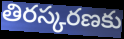
తిరస్కరణకు